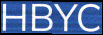
HBYC